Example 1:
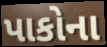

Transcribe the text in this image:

પાકોના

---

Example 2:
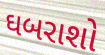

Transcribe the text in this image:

ઘબરાશો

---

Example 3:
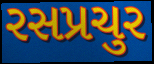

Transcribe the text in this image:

રસપ્રચુર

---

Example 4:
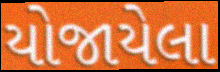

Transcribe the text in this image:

યોજાયેલા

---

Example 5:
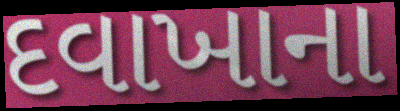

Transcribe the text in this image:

દવાખાના